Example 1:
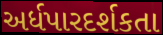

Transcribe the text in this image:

અર્ધપારદર્શકતા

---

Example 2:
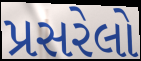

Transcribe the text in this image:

પ્રસરેલો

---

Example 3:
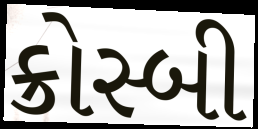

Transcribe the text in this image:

ક્રોસ્બી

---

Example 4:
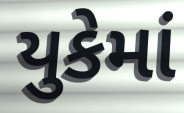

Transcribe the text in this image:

યુકેમાં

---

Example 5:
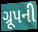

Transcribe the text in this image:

ગ્રૂપની